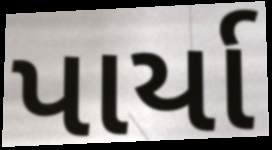
પાર્યા